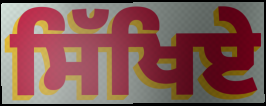
ਸਿੱਖਿਏ